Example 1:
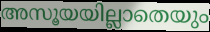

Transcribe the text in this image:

അസൂയയില്ലാതെയും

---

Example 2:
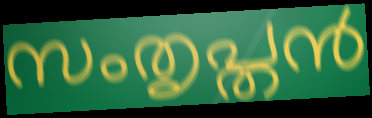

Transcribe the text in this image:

സംതൃപ്തൻ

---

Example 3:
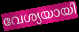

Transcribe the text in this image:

വേശ്യയായി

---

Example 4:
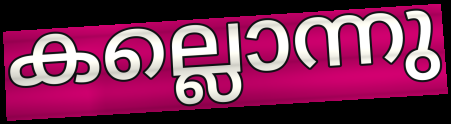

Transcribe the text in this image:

കല്ലൊന്നു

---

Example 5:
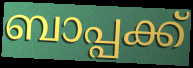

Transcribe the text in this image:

ബാപ്പക്ക്